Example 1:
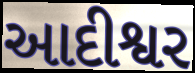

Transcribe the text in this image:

આદીશ્વર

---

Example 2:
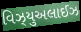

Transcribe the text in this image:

વિઝ્યુઅલાઈઝ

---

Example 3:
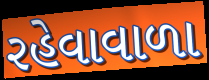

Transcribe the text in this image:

રહેવાવાળા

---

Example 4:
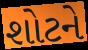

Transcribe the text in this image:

શોટને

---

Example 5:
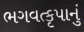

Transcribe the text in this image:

ભગવત્કૃપાનું